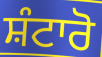
ਸ਼ੰਟਾਰੋ